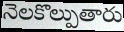
నెలకొల్పుతారు